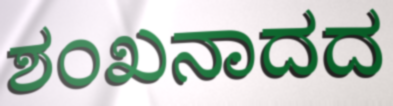
ಶಂಖನಾದದ